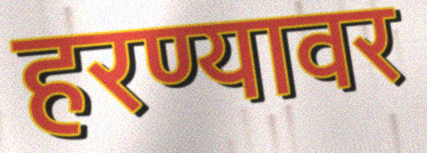
हरण्यावर